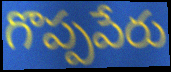
గొప్పపేరు